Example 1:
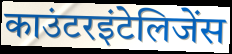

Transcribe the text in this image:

काउंटरइंटेलिजेंस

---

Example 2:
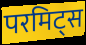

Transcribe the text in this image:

परमिट्स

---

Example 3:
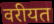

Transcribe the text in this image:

वरीयत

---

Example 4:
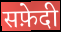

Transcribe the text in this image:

सफ़ेदी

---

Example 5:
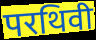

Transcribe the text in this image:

परथिवी